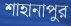
শাহানাপুর